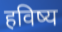
हविष्य